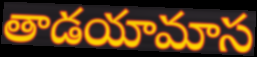
తాడయామాస